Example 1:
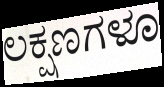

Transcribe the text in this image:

ಲಕ್ಷಣಗಳೂ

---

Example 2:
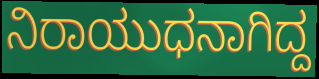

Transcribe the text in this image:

ನಿರಾಯುಧನಾಗಿದ್ದ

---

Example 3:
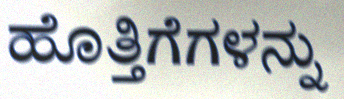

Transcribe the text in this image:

ಹೊತ್ತಿಗೆಗಳನ್ನು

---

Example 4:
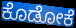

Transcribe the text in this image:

ಕೊಡೋಕೆ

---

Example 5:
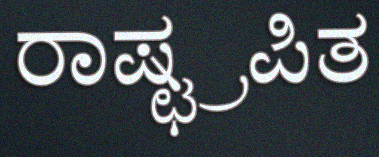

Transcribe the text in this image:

ರಾಷ್ಟ್ರಪಿತ